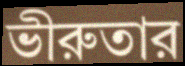
ভীরুতার